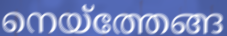
നെയ്ത്തേങ്ങ